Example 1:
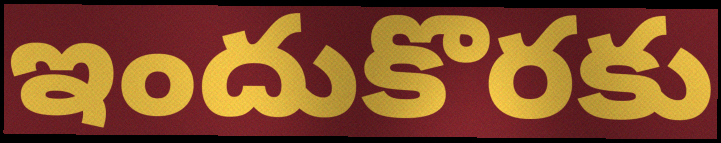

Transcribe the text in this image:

ఇందుకొరకు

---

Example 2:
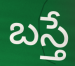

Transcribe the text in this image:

బస్తే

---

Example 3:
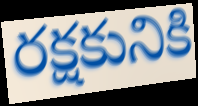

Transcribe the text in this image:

రక్షకునికి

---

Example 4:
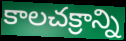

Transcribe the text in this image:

కాలచక్రాన్ని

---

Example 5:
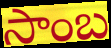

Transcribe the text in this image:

సాంబ